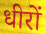
धीरों